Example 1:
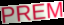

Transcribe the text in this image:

PREM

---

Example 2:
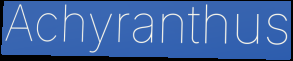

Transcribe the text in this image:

Achyranthus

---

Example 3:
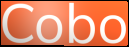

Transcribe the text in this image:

Cobo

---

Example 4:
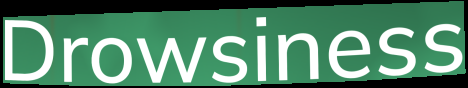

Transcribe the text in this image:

Drowsiness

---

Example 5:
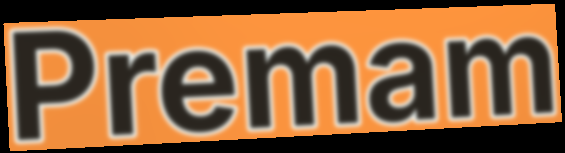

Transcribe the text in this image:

Premam